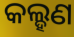
କଲ୍ହଣ